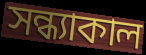
সন্ধ্যাকাল